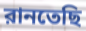
রানতেছি